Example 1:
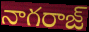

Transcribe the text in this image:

నాగరాజ్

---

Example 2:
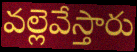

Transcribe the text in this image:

వల్లెవేస్తారు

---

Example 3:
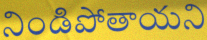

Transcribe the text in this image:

నిండిపోతాయని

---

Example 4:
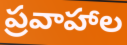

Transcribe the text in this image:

ప్రవాహాల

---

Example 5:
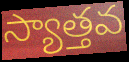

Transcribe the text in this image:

స్యాత్తవ